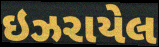
ઇઝરાયેલ